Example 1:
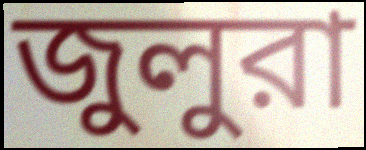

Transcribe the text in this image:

জুলুরা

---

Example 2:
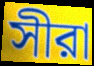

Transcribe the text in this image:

সীরা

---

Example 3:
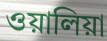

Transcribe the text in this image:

ওয়ালিয়া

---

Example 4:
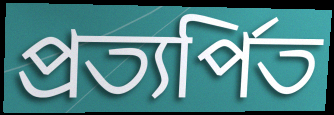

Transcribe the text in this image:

প্রত্যর্পিত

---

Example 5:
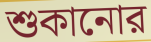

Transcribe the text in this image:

শুকানোর